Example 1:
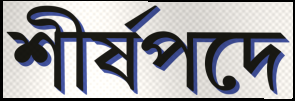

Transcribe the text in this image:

শীর্ষপদে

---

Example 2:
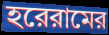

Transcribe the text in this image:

হরেরামের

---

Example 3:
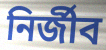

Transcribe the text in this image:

নির্জীব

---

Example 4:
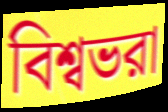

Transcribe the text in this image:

বিশ্বভরা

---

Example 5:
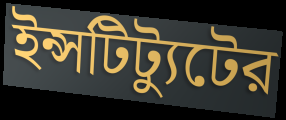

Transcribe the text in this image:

ইন্সটিট্যুটের